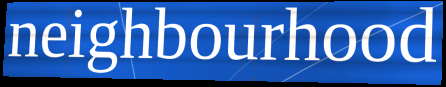
neighbourhood